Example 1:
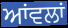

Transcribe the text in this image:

ਆਂਵਲਾਂ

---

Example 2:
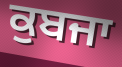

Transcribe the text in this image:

ਕੁਬਜਾ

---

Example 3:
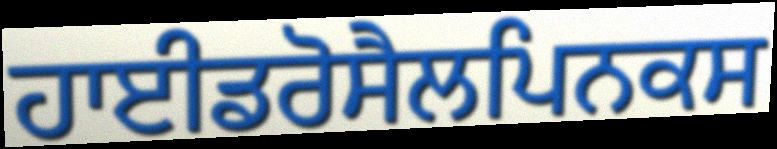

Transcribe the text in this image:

ਹਾਈਡਰੋਸੈਲਪਿਨਕਸ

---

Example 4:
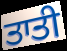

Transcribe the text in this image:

ਤਾਤੀ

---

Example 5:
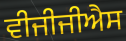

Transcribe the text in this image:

ਵੀਜੀਜੀਐਸ